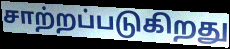
சாற்றப்படுகிறது